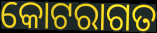
କୋଟରାଗତ